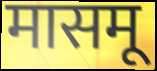
मासमू